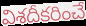
విశదీకరించే